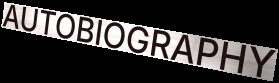
AUTOBIOGRAPHY